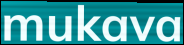
mukava